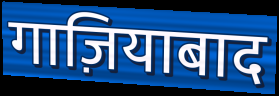
गाज़ियाबाद